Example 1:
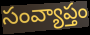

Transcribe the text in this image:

సంవ్యాప్తం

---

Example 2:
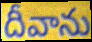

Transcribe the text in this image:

దీవాను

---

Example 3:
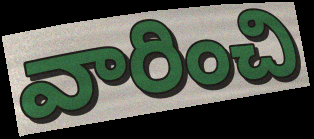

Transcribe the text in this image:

వారించి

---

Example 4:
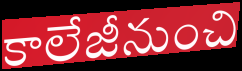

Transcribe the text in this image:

కాలేజీనుంచి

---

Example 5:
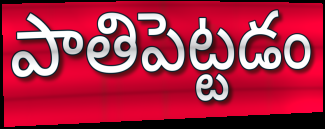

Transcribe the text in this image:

పాతిపెట్టడం